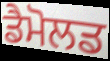
ਡੈਮੋਲਡ